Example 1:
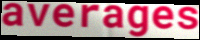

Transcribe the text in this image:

averages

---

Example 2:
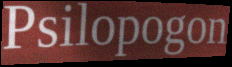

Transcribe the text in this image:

Psilopogon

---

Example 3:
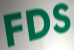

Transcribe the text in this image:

FDS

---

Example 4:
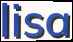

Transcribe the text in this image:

lisa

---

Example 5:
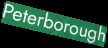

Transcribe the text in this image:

Peterborough